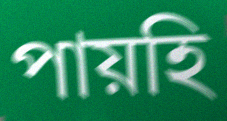
পায়হি